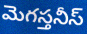
మెగస్తనీస్